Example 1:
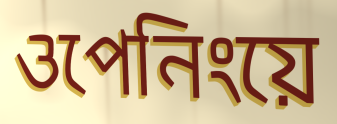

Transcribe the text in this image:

ওপেনিংয়ে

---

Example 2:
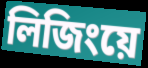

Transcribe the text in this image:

লিজিংয়ে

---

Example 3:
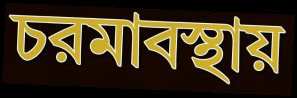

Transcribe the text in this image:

চরমাবস্থায়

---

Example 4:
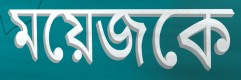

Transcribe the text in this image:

ময়েজকে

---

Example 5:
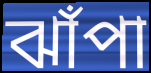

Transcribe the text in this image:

ঝাঁপা